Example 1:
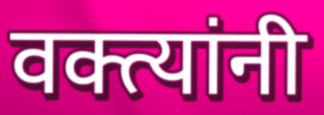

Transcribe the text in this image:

वक्त्यांनी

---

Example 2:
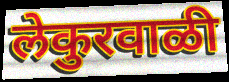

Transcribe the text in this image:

लेकुरवाळी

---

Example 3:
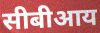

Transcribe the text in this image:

सीबीआय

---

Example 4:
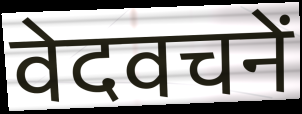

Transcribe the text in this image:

वेदवचनें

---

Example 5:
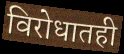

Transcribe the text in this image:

विरोधातही